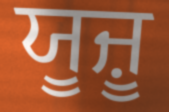
ਯੂਜ਼ੂ